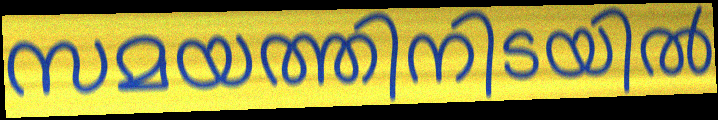
സമയത്തിനിടയിൽ